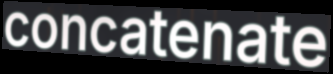
concatenate